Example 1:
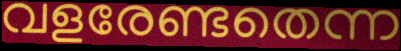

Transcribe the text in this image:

വളരേണ്ടതെന്ന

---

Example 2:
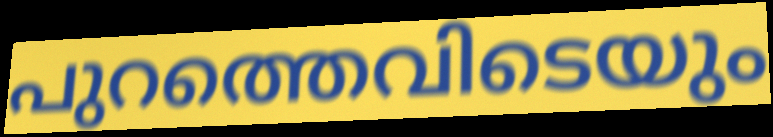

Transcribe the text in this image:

പുറത്തെവിടെയും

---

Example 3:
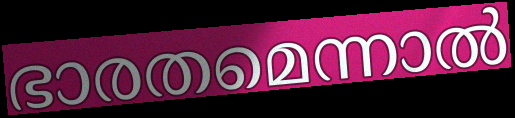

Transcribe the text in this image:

ഭാരതമെന്നാൽ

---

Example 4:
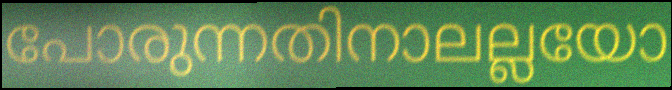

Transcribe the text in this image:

പോരുന്നതിനാലല്ലയോ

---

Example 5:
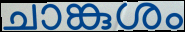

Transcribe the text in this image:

ചാങ്കുശം